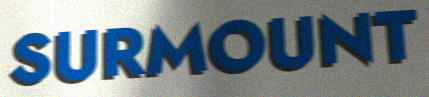
SURMOUNT